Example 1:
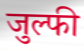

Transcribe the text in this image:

जुल्फी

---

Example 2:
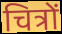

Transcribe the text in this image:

चित्रों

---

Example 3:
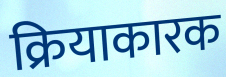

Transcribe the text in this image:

क्रियाकारक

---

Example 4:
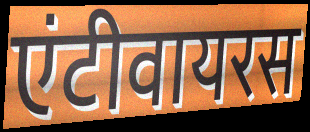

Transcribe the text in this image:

एंटीवायरस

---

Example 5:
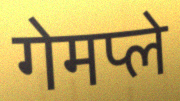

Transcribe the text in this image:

गेमप्ले